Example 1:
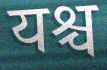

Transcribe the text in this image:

यश्च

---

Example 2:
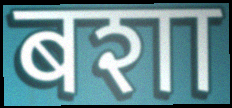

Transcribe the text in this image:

बशा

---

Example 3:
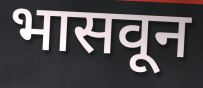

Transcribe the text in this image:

भासवून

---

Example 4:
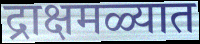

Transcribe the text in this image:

द्राक्षमळ्यात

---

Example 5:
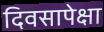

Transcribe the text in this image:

दिवसापेक्षा